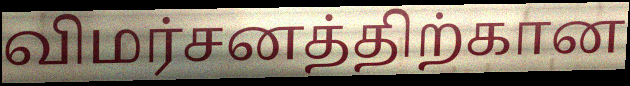
விமர்சனத்திற்கான